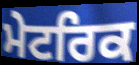
ਮੇਟਰਿਕ